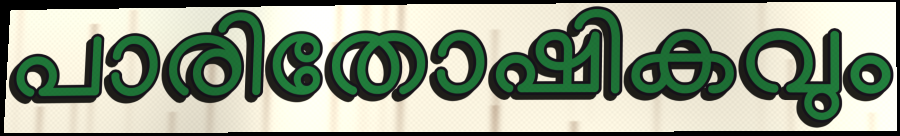
പാരിതോഷികവും